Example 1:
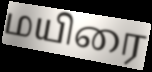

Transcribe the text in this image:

மயிரை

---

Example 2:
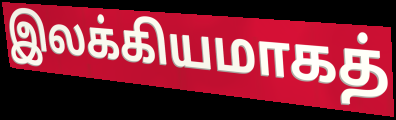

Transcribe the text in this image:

இலக்கியமாகத்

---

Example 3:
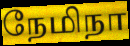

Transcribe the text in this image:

நேமிநா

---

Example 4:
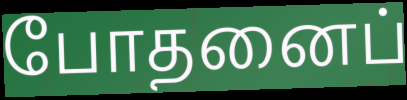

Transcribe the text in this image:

போதனைப்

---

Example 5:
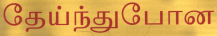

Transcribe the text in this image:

தேய்ந்துபோன